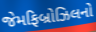
જેમફિબ્રોઝિલનો